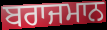
ਬਰਾਜਮਾਨ